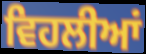
ਵਿਹਲੀਆਂ